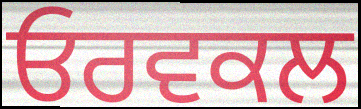
ਓਰਵਕਲ